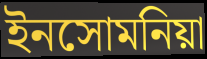
ইনসোমনিয়া